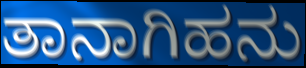
ತಾನಾಗಿಹನು